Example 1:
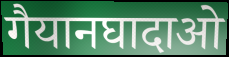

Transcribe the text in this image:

गैयानघादाओ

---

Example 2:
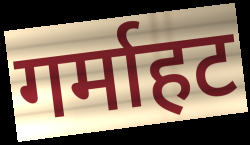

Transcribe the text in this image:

गर्माहट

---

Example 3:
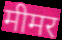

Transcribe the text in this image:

मीमर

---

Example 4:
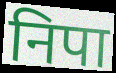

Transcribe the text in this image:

निपा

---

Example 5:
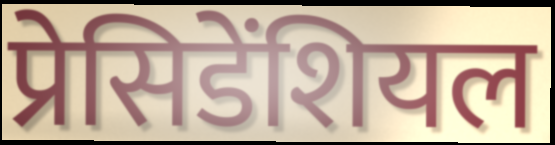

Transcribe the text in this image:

प्रेसिडेंशियल